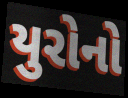
યુરોનો